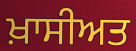
ਖ਼ਾਸੀਅਤ